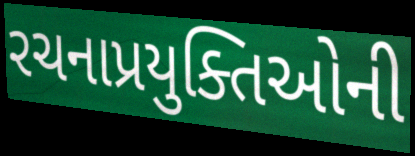
રચનાપ્રયુક્તિઓની